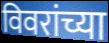
विवरांच्या